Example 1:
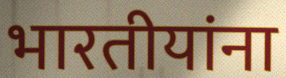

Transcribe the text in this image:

भारतीयांना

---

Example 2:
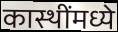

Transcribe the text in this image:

कास्थींमध्ये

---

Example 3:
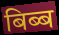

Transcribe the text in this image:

बिब्ब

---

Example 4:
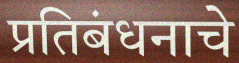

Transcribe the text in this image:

प्रतिबंधनाचे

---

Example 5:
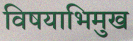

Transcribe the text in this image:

विषयाभिमुख